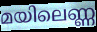
മയിലെണ്ണ